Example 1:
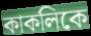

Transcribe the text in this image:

কাকলিকে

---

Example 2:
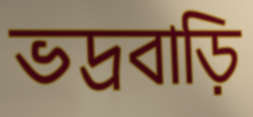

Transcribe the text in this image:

ভদ্রবাড়ি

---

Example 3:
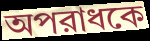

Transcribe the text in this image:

অপরাধকে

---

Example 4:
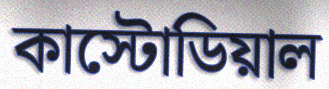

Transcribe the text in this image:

কাস্টোডিয়াল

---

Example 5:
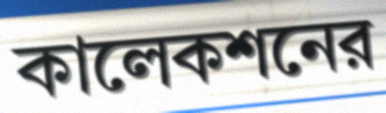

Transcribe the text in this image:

কালেকশনের